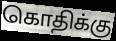
கொதிக்கு